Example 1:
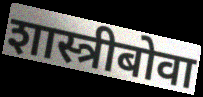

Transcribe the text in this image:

शास्त्रीबोवा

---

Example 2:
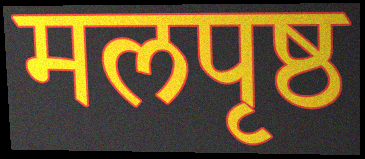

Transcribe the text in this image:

मलपृष्ठ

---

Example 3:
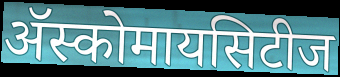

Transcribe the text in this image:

ॲस्कोमायसिटीज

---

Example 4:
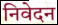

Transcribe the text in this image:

निवेदन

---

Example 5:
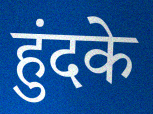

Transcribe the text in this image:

हुंदके